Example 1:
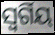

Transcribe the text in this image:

ସ୍ୱର୍ଗିୟ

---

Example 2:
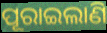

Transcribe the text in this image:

ପୂରାଇଲାଣି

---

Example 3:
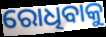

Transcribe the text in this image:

ରୋଧିବାକୁ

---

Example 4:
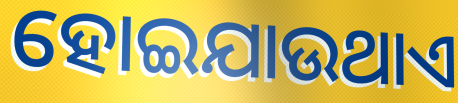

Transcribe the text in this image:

ହୋଇଯାଉଥାଏ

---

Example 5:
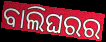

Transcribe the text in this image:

ବାଲିଘରର